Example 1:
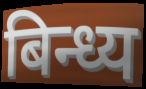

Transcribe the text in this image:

बिन्ध्य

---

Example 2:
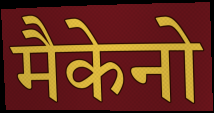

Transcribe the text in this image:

मैकेनो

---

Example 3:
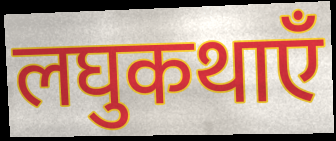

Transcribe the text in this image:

लघुकथाएँ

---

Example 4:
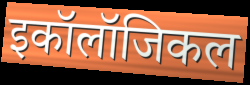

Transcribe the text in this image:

इकॉलॉजिकल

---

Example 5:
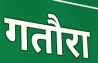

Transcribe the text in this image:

गतौरा